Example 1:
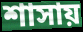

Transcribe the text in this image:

শাসায়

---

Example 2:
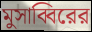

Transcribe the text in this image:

মুসাব্বিরের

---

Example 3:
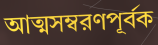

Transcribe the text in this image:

আত্মসম্বরণপূর্বক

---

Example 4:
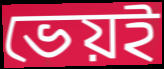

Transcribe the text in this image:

ভেয়ই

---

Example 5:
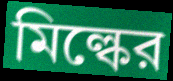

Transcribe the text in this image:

মিল্কের